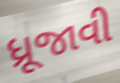
ધ્રૂજાવી